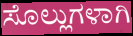
ಸೊಲ್ಲುಗಳಾಗಿ